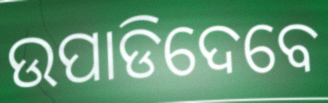
ଉପାଡିଦେବେ